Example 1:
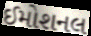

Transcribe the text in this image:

ઈમોશનલ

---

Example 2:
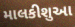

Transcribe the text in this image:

માલકીશુઆ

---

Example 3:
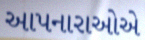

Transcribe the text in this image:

આપનારાઓએ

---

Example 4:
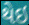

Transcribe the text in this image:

થેઇ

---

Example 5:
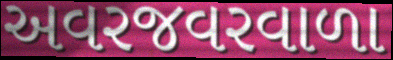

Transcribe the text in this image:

અવરજવરવાળા